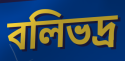
বলিভদ্র